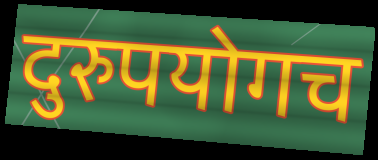
दुरुपयोगच